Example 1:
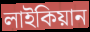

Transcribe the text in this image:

লাইকিয়ান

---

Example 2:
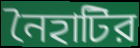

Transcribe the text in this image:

নৈহাটির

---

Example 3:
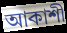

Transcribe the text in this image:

আকাশী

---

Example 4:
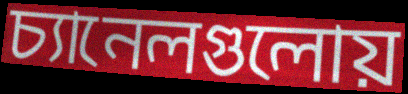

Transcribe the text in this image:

চ্যানেলগুলোয়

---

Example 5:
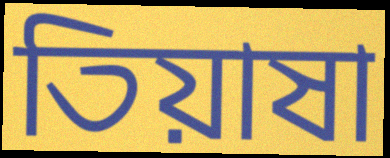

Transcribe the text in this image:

তিয়াষা